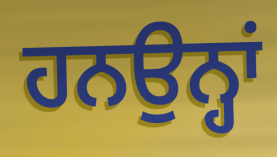
ਹਨਉਨ੍ਹਾਂ